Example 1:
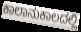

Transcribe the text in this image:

ಕಾಲಾನುಕಾಲದಲ್ಲಿ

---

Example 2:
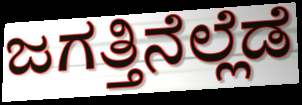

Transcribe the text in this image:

ಜಗತ್ತಿನೆಲ್ಲೆಡೆ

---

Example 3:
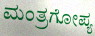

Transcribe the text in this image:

ಮಂತ್ರಗೋಪ್ಯ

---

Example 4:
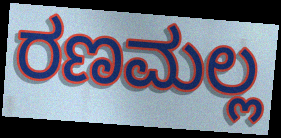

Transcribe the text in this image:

ರಣಮಲ್ಲ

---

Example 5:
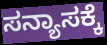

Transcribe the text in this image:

ಸನ್ಯಾಸಕ್ಕೆ